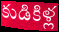
కుడికిళ్ల